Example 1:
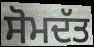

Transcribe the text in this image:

ਸੋਮਦੱਤ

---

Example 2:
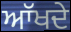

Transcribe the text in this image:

ਆੱਖਦੇ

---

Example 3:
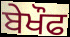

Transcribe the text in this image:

ਬੇਖੌਫ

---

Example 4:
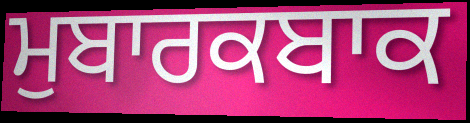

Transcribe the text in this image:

ਮੁਬਾਰਕਬਾਕ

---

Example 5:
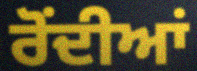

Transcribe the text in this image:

ਰੋਂਦੀਆਂ